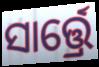
ସାର୍ତ୍ତ୍ରେ